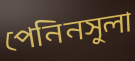
পেনিনসুলা